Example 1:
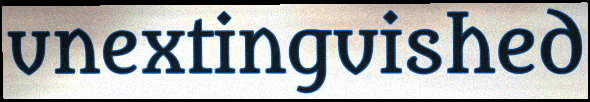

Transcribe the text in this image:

unextinguished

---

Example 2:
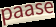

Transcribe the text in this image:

paase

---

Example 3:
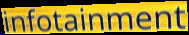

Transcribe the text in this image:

infotainment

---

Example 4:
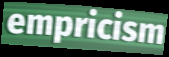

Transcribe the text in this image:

empricism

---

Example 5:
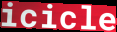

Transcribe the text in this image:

icicle